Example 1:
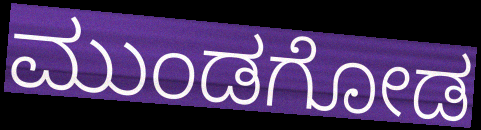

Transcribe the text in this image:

ಮುಂಡಗೋಡ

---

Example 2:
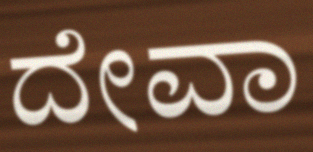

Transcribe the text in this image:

ದೇವಾ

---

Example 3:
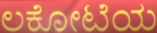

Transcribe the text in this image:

ಲಕೋಟೆಯ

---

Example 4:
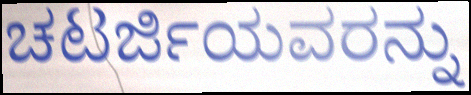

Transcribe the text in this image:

ಚಟರ್ಜಿಯವರನ್ನು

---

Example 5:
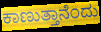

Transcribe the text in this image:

ಕಾಣುತ್ತಾನೆಂದು